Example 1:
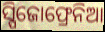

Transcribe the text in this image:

ସ୍ପିଜୋଫ୍ରେନିଆ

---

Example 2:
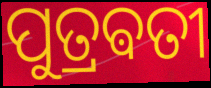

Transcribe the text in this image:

ପୁତ୍ରଵତୀ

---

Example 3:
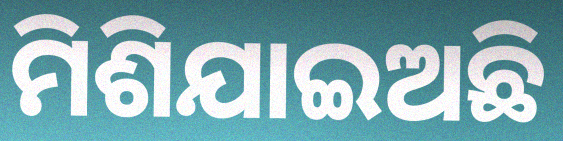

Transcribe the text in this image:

ମିଶିଯାଇଅଛି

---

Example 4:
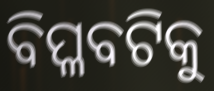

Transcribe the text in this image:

ବିପ୍ଳବଟିକୁ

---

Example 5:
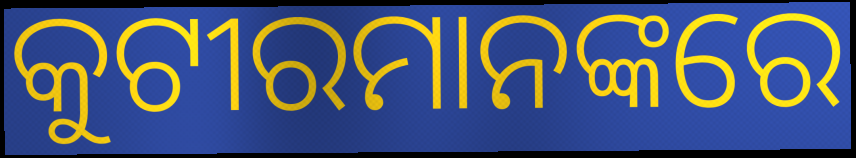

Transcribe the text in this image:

କୁଟୀରମାନଙ୍କରେ